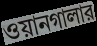
ওয়ানগালার